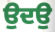
ਉਦਉ